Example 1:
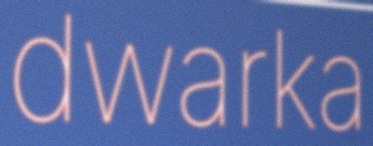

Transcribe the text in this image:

dwarka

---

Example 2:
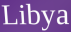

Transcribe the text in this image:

Libya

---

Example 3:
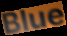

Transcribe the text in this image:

Blue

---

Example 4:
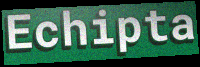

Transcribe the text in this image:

Echipta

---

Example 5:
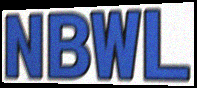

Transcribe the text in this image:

NBWL